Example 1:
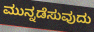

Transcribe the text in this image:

ಮುನ್ನಡೆಸುವುದು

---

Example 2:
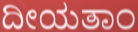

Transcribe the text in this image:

ದೀಯತಾಂ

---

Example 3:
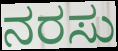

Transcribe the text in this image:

ನರಸು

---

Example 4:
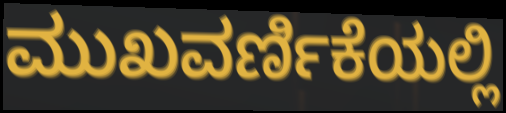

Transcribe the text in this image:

ಮುಖವರ್ಣಿಕೆಯಲ್ಲಿ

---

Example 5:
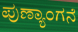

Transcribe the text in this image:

ಪುಣ್ಯಾಂಗನೆ